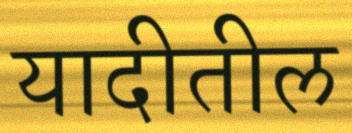
यादीतील